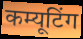
कम्यूटिंग